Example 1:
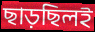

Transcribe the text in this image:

ছাড়ছিলই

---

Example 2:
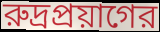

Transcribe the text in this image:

রুদ্রপ্রয়াগের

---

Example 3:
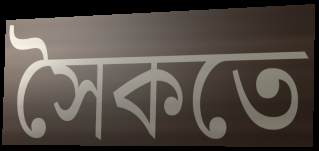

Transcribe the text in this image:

সৈকতে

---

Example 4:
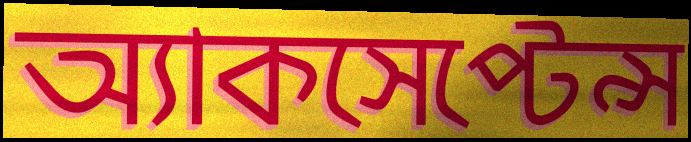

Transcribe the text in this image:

অ্যাকসেপ্টেন্স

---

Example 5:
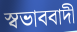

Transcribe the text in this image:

স্বভাববাদী